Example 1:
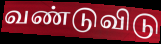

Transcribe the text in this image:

வண்டுவிடு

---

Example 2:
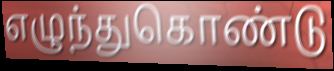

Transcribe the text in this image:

எழுந்துகொண்டு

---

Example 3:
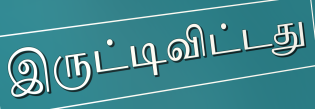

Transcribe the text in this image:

இருட்டிவிட்டது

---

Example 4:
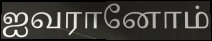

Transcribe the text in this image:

ஐவரானோம்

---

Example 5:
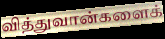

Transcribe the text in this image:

வித்துவான்களைக்